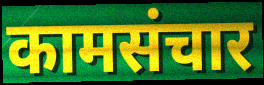
कामसंचार